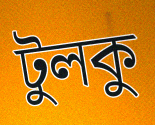
টুলকু